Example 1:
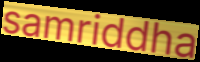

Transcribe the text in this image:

samriddha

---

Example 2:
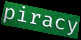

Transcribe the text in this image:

piracy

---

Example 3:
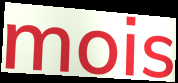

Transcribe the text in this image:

mois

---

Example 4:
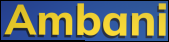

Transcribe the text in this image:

Ambani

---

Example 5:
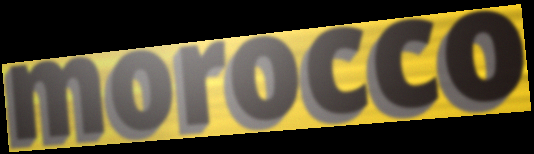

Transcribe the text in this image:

morocco